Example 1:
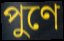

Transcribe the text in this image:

পুণে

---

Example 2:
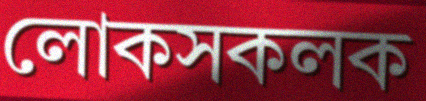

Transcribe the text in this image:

লোকসকলক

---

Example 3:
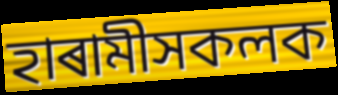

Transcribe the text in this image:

হাৰামীসকলক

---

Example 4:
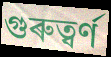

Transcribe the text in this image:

গুৰুত্ৱৰ্ণ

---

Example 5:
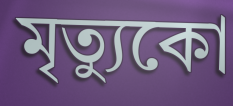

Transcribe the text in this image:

মৃত্যুকো